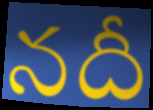
నదీ